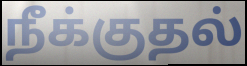
நீக்குதல்